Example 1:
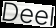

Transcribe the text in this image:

Deel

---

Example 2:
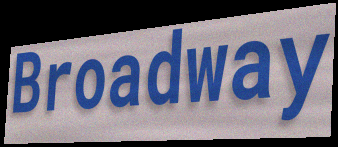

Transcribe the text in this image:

Broadway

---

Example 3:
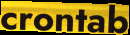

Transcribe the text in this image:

crontab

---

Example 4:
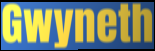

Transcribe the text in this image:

Gwyneth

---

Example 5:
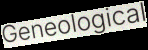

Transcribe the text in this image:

Geneological